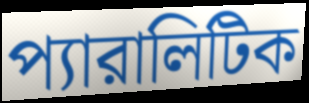
প্যারালিটিক